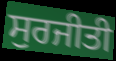
ਸੁਰਜੀਤੀ